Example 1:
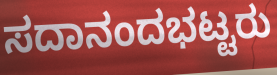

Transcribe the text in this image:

ಸದಾನಂದಭಟ್ಟರು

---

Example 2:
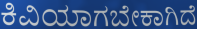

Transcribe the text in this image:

ಕಿವಿಯಾಗಬೇಕಾಗಿದೆ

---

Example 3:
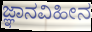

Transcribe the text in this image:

ಜ್ಞಾನವಿಹೀನ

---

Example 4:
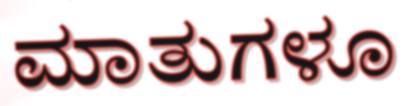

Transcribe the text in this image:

ಮಾತುಗಳೂ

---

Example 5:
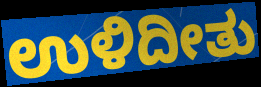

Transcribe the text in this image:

ಉಳಿದೀತು